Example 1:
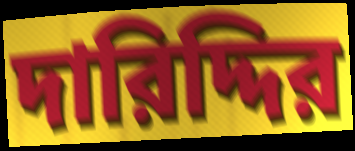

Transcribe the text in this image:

দারিদ্দির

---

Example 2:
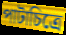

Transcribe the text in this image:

পাটাচিত্রে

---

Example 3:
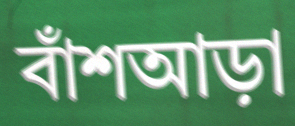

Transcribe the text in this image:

বাঁশআড়া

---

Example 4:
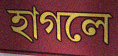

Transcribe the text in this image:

হাগলে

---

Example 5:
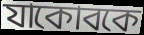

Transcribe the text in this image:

যাকোবকে